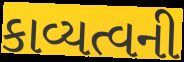
કાવ્યત્વની